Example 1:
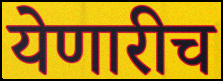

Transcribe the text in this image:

येणारीच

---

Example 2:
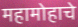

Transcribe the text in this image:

महामोहाचे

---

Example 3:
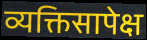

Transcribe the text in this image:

व्यक्तिसापेक्ष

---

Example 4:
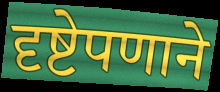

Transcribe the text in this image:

दृष्टेपणाने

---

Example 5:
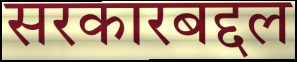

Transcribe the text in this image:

सरकारबद्दल